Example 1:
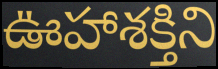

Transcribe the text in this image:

ఊహాశక్తిని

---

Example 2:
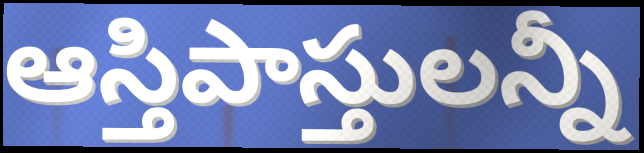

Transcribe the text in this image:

ఆస్తిపాస్తులన్నీ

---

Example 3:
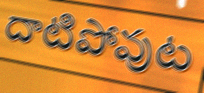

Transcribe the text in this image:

దాటిపోవుట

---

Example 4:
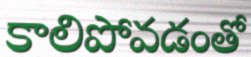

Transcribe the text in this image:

కాలిపోవడంతో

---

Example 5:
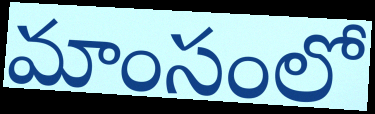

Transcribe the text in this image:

మాంసంలో